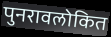
पुनरावलोकित